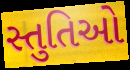
સ્તુતિઓ